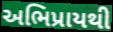
અભિપ્રાયથી